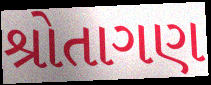
શ્રોતાગણ